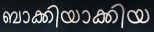
ബാക്കിയാക്കിയ